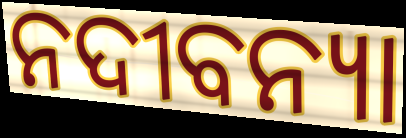
ନଦୀବନ୍ୟା